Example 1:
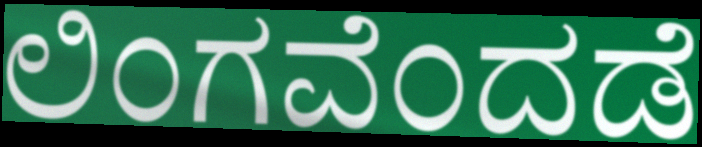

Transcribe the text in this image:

ಲಿಂಗವೆಂದಡೆ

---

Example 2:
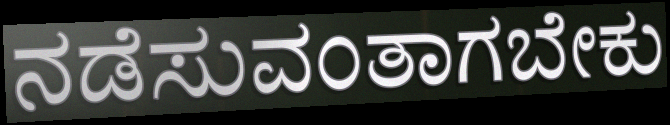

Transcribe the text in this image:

ನಡೆಸುವಂತಾಗಬೇಕು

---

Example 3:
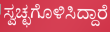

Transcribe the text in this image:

ಸ್ವಚ್ಛಗೊಳಿಸಿದ್ದಾರೆ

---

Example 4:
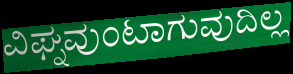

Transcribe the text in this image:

ವಿಘ್ನವುಂಟಾಗುವುದಿಲ್ಲ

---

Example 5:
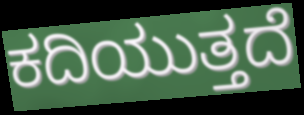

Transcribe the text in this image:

ಕದಿಯುತ್ತದೆ